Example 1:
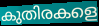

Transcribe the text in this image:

കുതിരകളെ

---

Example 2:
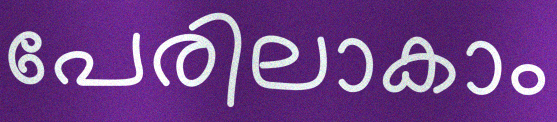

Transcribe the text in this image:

പേരിലാകാം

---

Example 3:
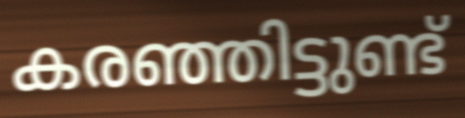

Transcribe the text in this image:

കരഞ്ഞിട്ടുണ്ട്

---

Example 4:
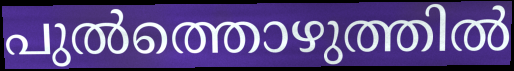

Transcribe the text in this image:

പുൽത്തൊഴുത്തിൽ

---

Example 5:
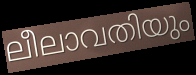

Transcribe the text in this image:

ലീലാവതിയും